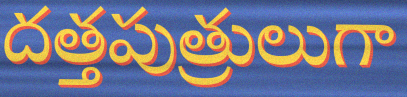
దత్తపుత్రులుగా